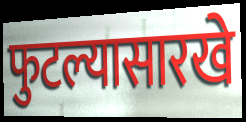
फुटल्यासारखे